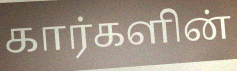
கார்களின்